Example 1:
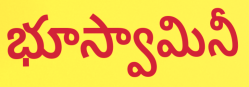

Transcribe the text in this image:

భూస్వామినీ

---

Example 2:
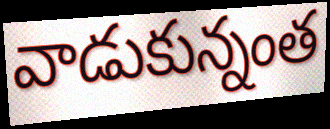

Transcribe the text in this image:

వాడుకున్నంత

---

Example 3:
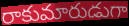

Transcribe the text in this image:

రాకుమారుడుగా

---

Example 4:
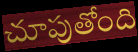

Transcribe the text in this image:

చూపుతోంది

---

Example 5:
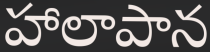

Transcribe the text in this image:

హాలాపాన